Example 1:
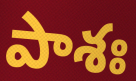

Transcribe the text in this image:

పాశః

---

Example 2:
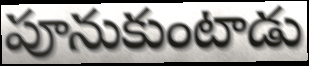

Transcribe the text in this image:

పూనుకుంటాడు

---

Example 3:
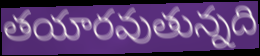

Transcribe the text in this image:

తయారవుతున్నది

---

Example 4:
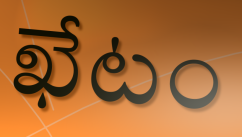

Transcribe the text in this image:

ఖేటం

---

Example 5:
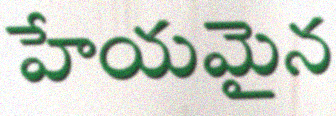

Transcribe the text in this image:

హేయమైన